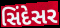
સિંદેસર